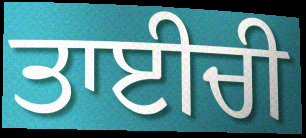
ਤਾਈਚੀ